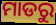
ମାଡରୁ